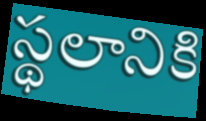
స్థలానికి